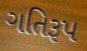
ગતિરૂપ